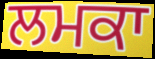
ਲਮਕਾ